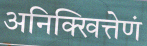
अनिक्खित्तेणं